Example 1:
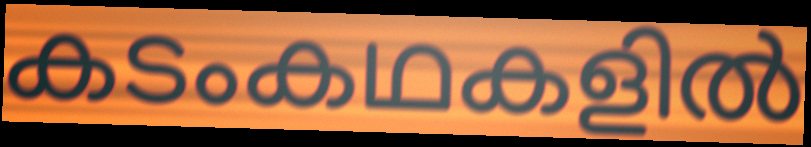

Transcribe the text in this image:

കടംകഥകളിൽ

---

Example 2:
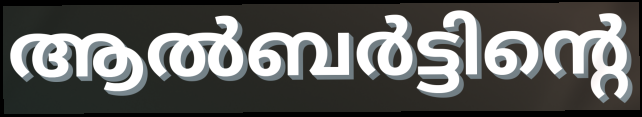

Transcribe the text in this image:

ആൽബർട്ടിന്റെ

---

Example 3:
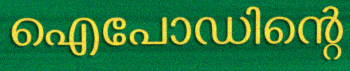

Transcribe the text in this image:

ഐപോഡിന്റെ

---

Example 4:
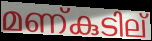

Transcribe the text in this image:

മണ്കുടില്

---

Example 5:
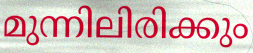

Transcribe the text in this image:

മുന്നിലിരിക്കും